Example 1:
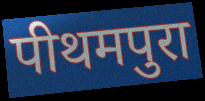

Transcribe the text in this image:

पीथमपुरा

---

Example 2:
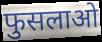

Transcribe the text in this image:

फुसलाओ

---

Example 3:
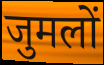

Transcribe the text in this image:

जुमलों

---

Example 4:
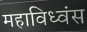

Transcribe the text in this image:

महाविध्वंस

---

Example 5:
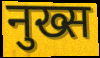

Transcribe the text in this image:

नुख्स